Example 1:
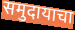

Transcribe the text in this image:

समुदायाचा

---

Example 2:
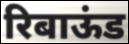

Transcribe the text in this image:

रिबाऊंड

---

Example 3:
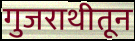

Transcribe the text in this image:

गुजराथीतून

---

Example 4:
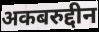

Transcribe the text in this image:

अकबरुद्दीन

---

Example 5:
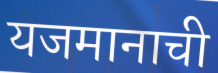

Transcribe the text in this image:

यजमानाची